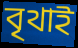
বৃথাই